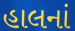
હાલનાં